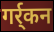
गर्र्कन